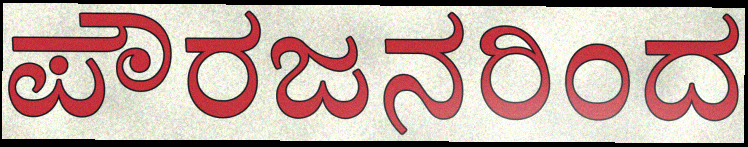
ಪೌರಜನರಿಂದ